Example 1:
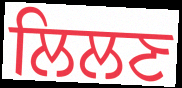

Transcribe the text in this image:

ਲਿਲਣ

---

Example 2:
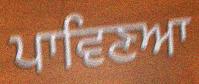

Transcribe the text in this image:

ਪਾਵਿਣਆ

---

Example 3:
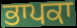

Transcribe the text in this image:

ਭਾਪਕਾ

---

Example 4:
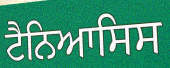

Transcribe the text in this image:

ਟੈਨਿਆਸਿਸ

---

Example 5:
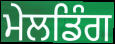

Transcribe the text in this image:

ਮੇਲਡਿੰਗ